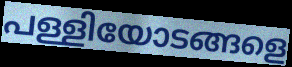
പള്ളിയോടങ്ങളെ